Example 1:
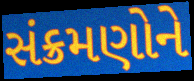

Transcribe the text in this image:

સંક્રમણોને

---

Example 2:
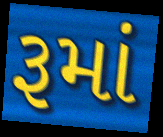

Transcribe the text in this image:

રૂમાં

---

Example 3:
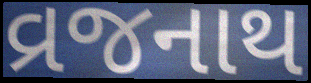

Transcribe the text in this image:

વ્રજનાથ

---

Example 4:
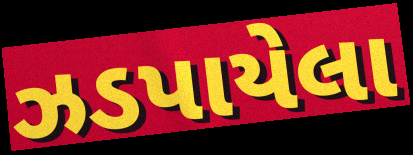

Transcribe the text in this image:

ઝડપાયેલા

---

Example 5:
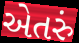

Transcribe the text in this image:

એતરું